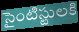
సైంటిస్టులకి